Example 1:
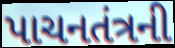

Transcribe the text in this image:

પાચનતંત્રની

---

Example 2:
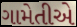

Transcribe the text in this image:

ગામેતીએ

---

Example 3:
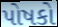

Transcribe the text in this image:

પોષકો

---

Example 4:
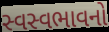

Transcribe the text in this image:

સ્વસ્વભાવનો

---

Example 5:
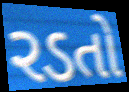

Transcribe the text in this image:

રડતો